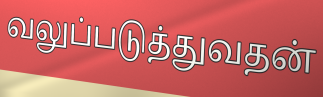
வலுப்படுத்துவதன்